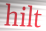
hilt